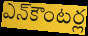
ఎన్‌కౌంటర్ల